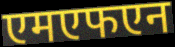
एमएफएन